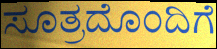
ಸೂತ್ರದೊಂದಿಗೆ